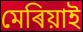
মেৰিয়াই